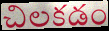
చిలకడం